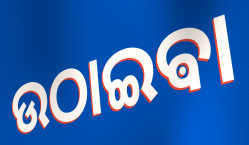
ଉଠାଇଵା